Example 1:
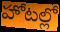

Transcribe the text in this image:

హోటల్లో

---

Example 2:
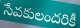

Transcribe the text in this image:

సేవకులందరికీ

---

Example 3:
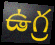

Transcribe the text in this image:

ఉగ్ర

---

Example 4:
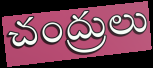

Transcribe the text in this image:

చంద్రులు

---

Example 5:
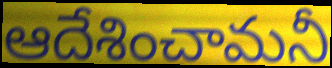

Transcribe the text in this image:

ఆదేశించామనీ